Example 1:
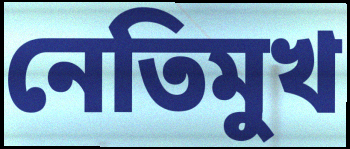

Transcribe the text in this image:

নেতিমুখ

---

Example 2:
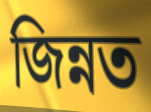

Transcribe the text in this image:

জিন্নত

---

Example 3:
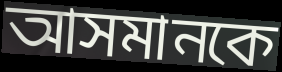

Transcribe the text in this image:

আসমানকে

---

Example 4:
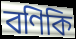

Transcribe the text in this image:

বণিকি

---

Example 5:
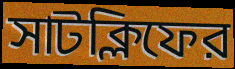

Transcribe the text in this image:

সাটক্লিফের